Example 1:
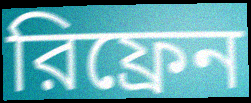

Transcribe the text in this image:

রিফ্রেন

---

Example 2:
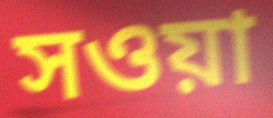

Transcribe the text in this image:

সওয়া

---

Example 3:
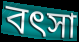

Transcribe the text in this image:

বৎসা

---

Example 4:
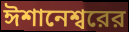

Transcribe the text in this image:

ঈশানেশ্বরের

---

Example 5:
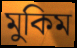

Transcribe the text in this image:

মুকিম